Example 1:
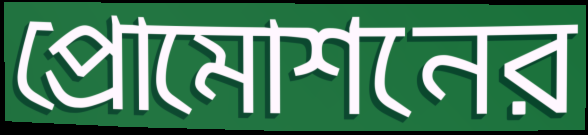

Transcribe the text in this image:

প্রোমোশনের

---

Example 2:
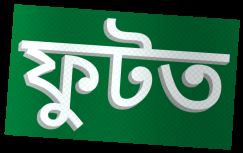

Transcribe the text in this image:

ফুটত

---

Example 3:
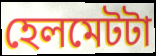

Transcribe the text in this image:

হেলমেটটা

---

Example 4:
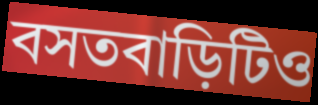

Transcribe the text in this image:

বসতবাড়িটিও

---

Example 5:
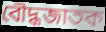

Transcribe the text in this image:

বৌদ্ধজাতক